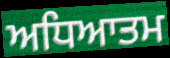
ਅਧਿਆਤਮ